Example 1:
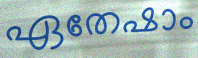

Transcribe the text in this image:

ഏതേഷാം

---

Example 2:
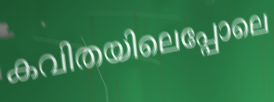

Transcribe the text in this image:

കവിതയിലെപ്പോലെ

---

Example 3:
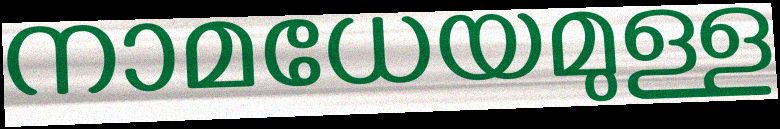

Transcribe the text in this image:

നാമധേയമുള്ള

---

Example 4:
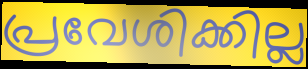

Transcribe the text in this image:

പ്രവേശിക്കില്ല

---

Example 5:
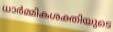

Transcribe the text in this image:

ധാർമ്മികശക്തിയുടെ